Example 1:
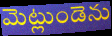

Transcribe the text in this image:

మెట్లుండెను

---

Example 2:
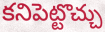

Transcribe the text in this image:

కనిపెట్టొచ్చు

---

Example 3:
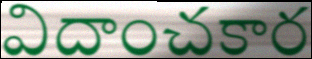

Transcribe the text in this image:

విదాంచకార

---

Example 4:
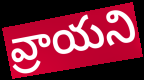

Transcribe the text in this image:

వ్రాయని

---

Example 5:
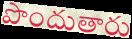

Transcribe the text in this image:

పొందుతారు